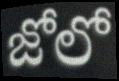
జోలో